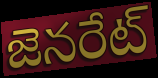
జెనరేట్